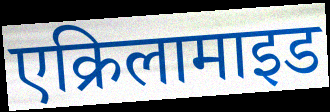
एक्रिलामाइड